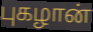
புகழான்